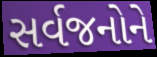
સર્વજનોને